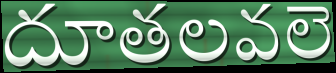
దూతలవలె